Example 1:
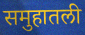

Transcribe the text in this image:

समुहातली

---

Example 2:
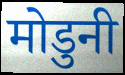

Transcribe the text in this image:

मोडुनी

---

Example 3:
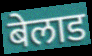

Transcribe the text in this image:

बेलाड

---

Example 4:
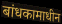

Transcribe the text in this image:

बांधकामाधीन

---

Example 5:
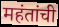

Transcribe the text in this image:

महंतांची